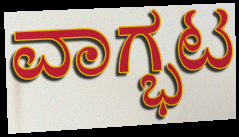
ವಾಗ್ಭಟ